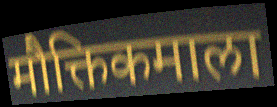
मौक्तिकमाला